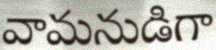
వామనుడిగా